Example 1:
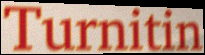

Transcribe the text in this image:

Turnitin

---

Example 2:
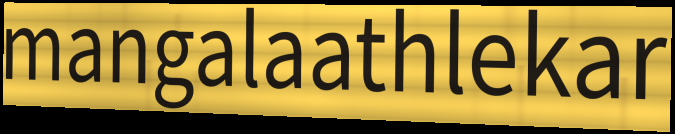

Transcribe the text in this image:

mangalaathlekar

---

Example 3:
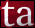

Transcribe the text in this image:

ta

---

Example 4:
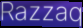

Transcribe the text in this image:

Razzaq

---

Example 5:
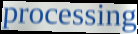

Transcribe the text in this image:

processing